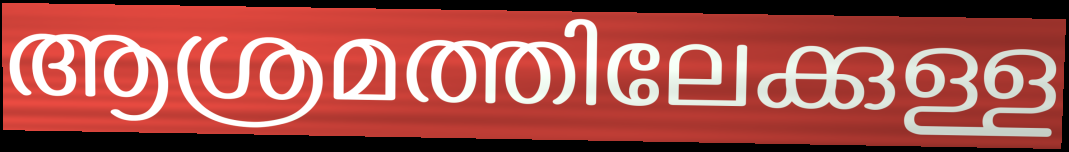
ആശ്രമത്തിലേക്കുള്ള